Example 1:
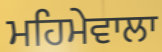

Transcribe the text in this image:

ਮਹਿਮੇਵਾਲਾ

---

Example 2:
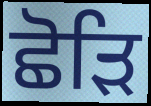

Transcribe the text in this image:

ਛੋੜਿ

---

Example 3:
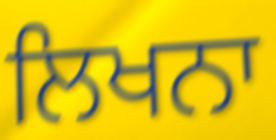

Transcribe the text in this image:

ਲਿਖਨਾ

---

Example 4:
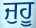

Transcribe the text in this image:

ਜੁਹੂ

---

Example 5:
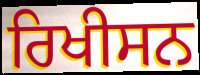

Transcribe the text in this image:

ਰਿਖੀਸਨ